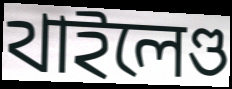
থাইলেণ্ড